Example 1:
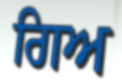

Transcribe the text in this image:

ਗਿਅ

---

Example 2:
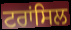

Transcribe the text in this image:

ਟਰਾਂਸਿਲ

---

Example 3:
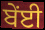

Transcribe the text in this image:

ਬੇਂਈ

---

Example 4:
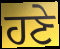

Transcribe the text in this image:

ਹਣੇ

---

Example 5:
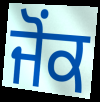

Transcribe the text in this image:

ਜੋਂਕ